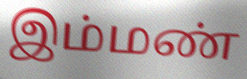
இம்மண்